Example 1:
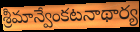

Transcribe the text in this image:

శ్రీమాన్వేంకటనాథార్య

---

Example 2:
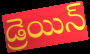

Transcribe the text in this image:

డ్రెయిన్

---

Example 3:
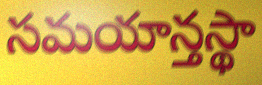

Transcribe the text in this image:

సమయాన్తస్థా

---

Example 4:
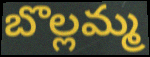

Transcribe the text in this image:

బొల్లమ్మ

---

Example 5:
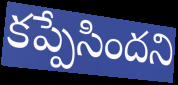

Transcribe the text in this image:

కప్పేసిందని